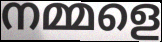
നമ്മളെ